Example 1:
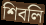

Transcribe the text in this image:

শিবলি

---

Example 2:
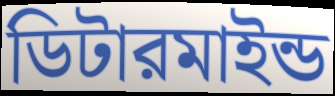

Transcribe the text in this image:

ডিটারমাইন্ড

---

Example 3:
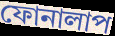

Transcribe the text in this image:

ফোনালাপ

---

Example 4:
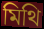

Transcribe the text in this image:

মিথি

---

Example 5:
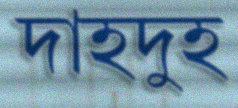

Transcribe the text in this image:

দাহদুহ